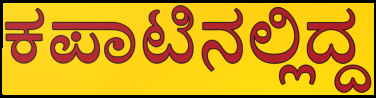
ಕಪಾಟಿನಲ್ಲಿದ್ದ